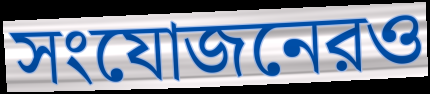
সংযোজনেরও